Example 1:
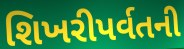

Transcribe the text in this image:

શિખરીપર્વતની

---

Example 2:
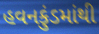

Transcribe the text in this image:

હવનકુંડમાંથી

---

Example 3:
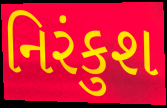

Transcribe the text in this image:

નિરંકુશ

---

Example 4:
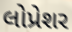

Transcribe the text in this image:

લોપ્રેશર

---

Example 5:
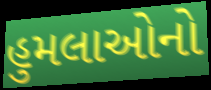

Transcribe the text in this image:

હુમલાઓનો